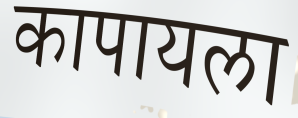
कापायला